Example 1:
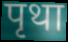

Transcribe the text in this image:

पृथा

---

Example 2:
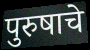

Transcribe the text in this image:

पुरुषाचे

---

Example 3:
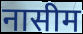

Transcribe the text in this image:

नासीम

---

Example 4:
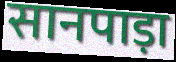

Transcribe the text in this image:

सानपाड़ा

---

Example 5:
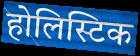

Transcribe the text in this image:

होलिस्टिक